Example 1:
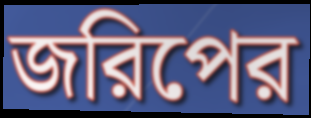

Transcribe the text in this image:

জরিপের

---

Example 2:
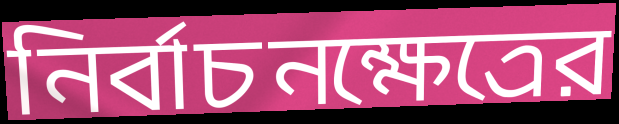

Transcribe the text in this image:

নির্বাচনক্ষেত্রের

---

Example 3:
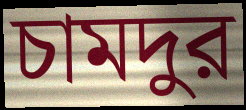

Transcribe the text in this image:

চামদুর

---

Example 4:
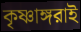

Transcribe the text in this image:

কৃষ্ণাঙ্গরাই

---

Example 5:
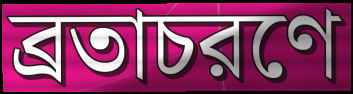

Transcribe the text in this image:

ব্রতাচরণে